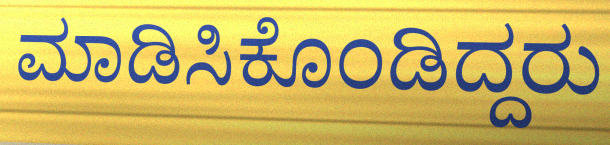
ಮಾಡಿಸಿಕೊಂಡಿದ್ದರು